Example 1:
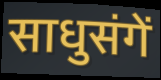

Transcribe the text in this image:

साधुसंगें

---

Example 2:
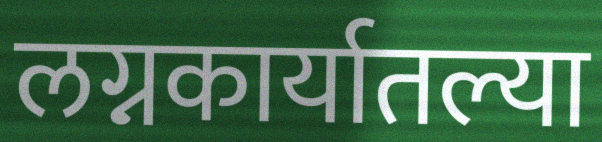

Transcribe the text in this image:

लग्नकार्यातल्या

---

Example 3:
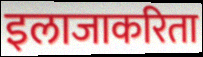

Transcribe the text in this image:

इलाजाकरिता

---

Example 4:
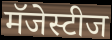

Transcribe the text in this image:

मॅजेस्टीज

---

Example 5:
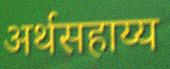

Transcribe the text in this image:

अर्थसहाय्य